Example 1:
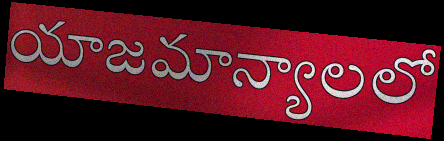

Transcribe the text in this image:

యాజమాన్యాలలో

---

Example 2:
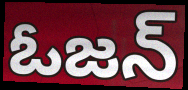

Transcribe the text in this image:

ఓజన్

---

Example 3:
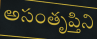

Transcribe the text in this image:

అసంతృప్తిని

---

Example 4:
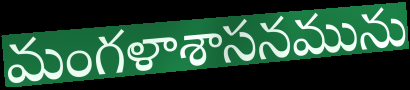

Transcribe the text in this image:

మంగళాశాసనమును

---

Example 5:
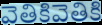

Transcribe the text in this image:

వెతికివెతికి